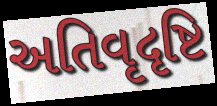
અતિવૃદૃષ્ટિ